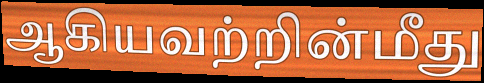
ஆகியவற்றின்மீது